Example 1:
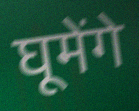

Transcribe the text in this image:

घूमेंगे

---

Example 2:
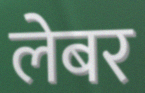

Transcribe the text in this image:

लेबर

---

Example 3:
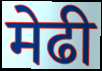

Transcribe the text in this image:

मेढी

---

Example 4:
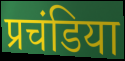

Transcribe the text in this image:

प्रचंडिया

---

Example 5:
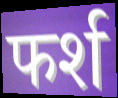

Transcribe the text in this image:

फर्श